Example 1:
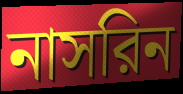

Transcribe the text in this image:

নাসরিন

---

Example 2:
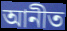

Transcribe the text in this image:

আনীত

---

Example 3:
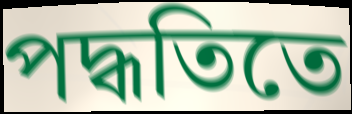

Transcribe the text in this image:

পদ্ধতিতে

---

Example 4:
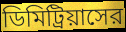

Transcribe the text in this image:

ডিমিট্রিয়াসের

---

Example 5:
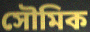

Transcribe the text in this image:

সৌমিক